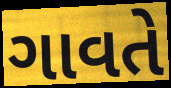
ગાવતે